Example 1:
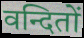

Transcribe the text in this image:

वन्दितों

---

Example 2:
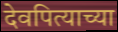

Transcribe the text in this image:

देवपित्याच्या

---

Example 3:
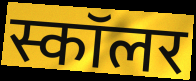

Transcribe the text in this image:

स्कॉलर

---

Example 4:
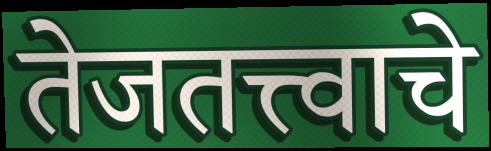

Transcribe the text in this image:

तेजतत्त्वाचे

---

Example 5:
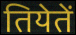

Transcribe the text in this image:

तियेतें